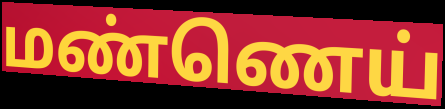
மண்ணெய்